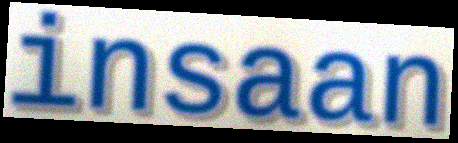
insaan